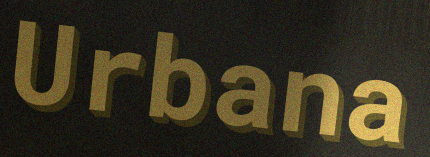
Urbana